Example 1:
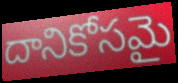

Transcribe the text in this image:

దానికోసమై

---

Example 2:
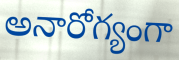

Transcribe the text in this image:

అనారోగ్యంగా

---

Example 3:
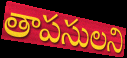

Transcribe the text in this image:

తాపసులని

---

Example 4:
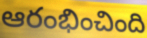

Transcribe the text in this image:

ఆరంభించింది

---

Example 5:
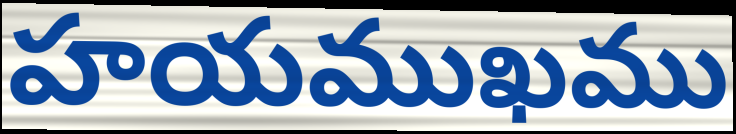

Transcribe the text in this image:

హయముఖము